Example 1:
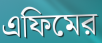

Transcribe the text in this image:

এফিমের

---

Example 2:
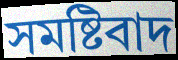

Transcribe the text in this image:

সমষ্টিবাদ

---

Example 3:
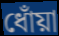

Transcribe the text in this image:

ধোঁয়া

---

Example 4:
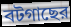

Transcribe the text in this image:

বটগাছের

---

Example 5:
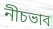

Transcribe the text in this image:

নীচভাব